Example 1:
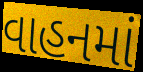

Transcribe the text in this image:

વાહનમાં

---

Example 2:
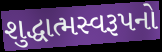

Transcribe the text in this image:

શુદ્ધાત્મસ્વરૂપનો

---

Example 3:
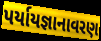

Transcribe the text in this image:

પર્યાયજ્ઞાનાવરણ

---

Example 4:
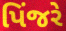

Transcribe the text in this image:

પિંજરે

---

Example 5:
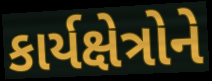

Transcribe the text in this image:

કાર્યક્ષેત્રોને